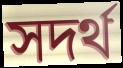
সদর্থ